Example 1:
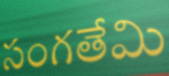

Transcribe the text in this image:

సంగతేమి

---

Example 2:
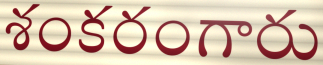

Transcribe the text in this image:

శంకరంగారు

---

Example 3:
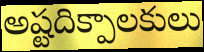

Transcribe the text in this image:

అష్టదిక్పాలకులు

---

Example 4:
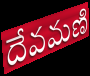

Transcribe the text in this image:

దేవమణి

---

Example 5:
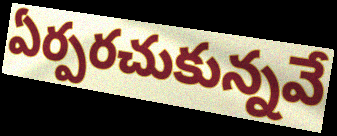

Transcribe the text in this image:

ఏర్పరచుకున్నవే